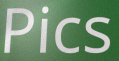
Pics